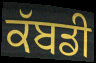
ਕੱਬਡੀ